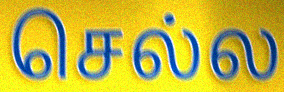
செல்ல